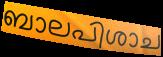
ബാലപിശാച